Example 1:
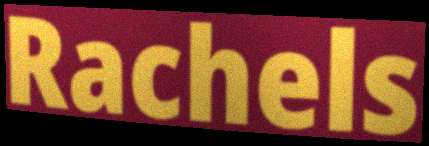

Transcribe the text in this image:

Rachels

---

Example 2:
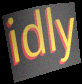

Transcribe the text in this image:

idly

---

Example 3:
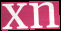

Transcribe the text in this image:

xn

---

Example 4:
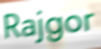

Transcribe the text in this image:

Rajgor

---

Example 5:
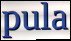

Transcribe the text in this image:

pula